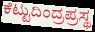
ಕೆಟ್ಟುದಿಂದ್ರಪ್ರಸ್ಥ